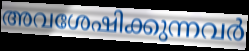
അവശേഷിക്കുന്നവർ